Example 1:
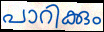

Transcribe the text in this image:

പാറിക്കും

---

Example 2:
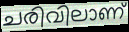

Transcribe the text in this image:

ചരിവിലാണ്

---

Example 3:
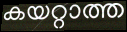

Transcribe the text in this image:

കയറ്റാത്ത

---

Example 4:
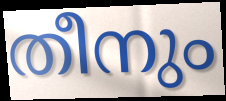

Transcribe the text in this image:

തീനും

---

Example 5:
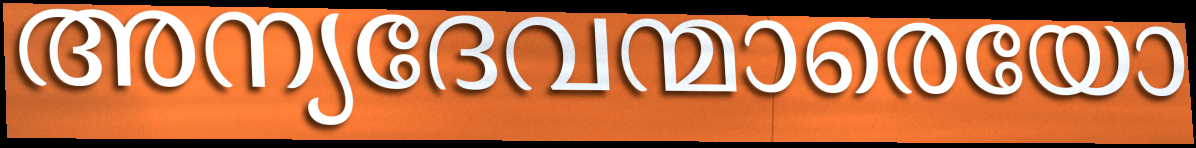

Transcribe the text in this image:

അന്യദേവന്മാരെയോ